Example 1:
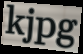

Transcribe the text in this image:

kjpg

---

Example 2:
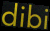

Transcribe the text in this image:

dibi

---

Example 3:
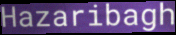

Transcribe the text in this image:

Hazaribagh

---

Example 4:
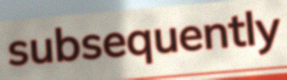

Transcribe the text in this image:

subsequently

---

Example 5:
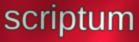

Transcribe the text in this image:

scriptum